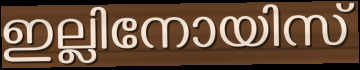
ഇല്ലിനോയിസ്